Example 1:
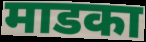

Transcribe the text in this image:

माडका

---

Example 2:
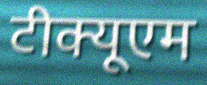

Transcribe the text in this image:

टीक्यूएम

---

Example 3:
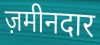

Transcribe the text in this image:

ज़मीनदार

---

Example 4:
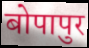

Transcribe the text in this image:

बोपापुर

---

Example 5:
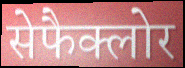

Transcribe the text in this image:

सेफैक्लोर